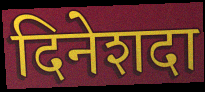
दिनेशदा